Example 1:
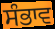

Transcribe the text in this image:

ਸੰਭਾਵ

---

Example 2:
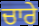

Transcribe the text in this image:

ਚਾਰੇ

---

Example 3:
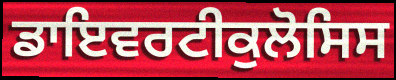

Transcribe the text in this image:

ਡਾਇਵਰਟੀਕੁਲੋਸਿਸ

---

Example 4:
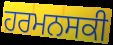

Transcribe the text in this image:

ਹਰਮਨਸਕੀ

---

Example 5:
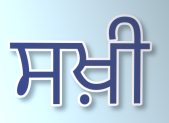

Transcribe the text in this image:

ਸਖ਼ੀ